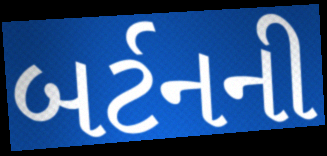
બર્ટનની